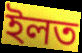
ইলত